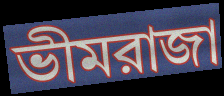
ভীমরাজা